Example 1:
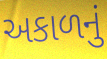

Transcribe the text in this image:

અકાળનું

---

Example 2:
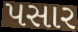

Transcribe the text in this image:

પસાર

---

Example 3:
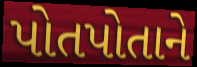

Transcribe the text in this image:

પોતપોતાને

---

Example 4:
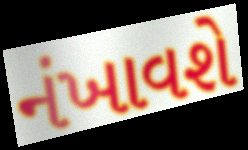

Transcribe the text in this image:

નંખાવશે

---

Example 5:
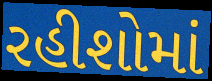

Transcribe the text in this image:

રહીશોમાં